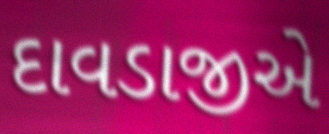
દાવડાજીએ